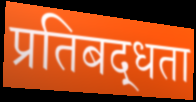
प्रतिबद्धता